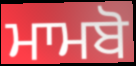
ਮਾਮਬੋ